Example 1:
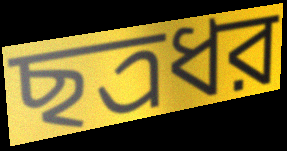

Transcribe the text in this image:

ছত্রধর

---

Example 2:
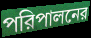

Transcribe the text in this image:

পরিপালনের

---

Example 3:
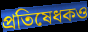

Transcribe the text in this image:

প্রতিষেধকও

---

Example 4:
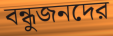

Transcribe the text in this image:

বন্ধুজনদের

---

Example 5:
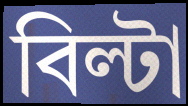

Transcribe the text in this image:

বিল্টা